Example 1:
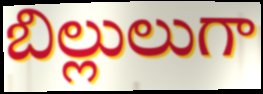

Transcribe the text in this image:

బిల్లులుగా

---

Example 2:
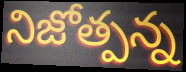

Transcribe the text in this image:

నిజోత్పన్న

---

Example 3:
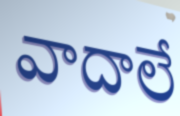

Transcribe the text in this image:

వాదాలే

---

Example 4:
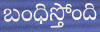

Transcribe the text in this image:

బంధిస్తోంది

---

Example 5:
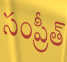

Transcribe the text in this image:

సంప్రీత్